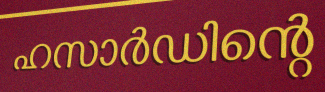
ഹസാർഡിന്റെ